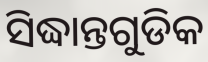
ସିଦ୍ଧାନ୍ତଗୁଡିକ